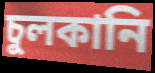
চুলকানি